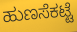
ಹುಣಸೆಕಟ್ಟೆ